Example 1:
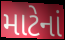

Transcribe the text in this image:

માટેનાં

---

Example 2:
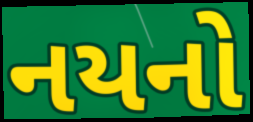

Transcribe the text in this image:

નયનો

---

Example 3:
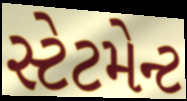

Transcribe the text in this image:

સ્ટેટમેન્ટ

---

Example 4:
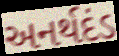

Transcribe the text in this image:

અનર્થદંડ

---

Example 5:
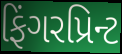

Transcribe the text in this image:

ફિંગરપ્રિન્ટ